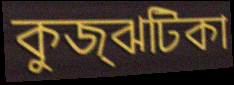
কুজ্‌ঝটিকা